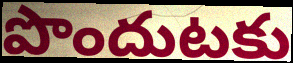
పొందుటకు